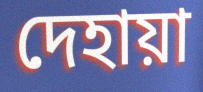
দেহায়া